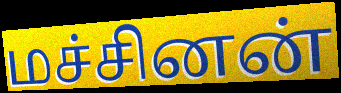
மச்சினன்